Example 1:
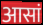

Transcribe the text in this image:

आसां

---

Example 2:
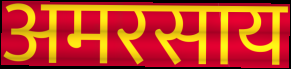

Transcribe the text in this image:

अमरसाय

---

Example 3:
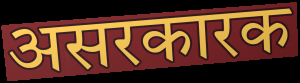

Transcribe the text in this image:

असरकारक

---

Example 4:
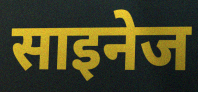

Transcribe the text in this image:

साइनेज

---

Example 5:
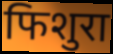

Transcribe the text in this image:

फिशुरा